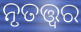
ନୃତତ୍ତ୍ଵର